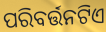
ପରିବର୍ତ୍ତନଟିଏ